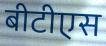
बीटीएस